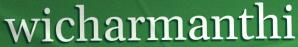
wicharmanthi